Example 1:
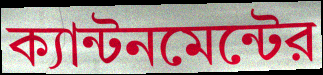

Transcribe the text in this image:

ক্যান্টনমেন্টের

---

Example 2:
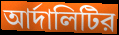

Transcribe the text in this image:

আর্দালিটির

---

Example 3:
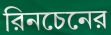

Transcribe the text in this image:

রিনচেনের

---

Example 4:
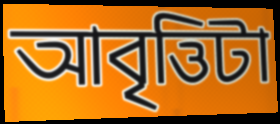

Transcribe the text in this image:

আবৃত্তিটা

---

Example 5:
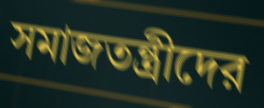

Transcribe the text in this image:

সমাজতন্ত্রীদের